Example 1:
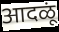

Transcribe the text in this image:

आदळूं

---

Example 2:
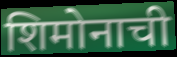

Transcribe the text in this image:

शिमोनाची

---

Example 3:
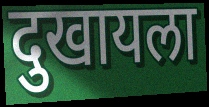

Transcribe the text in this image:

दुखायला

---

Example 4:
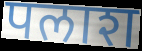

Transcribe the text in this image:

पलाश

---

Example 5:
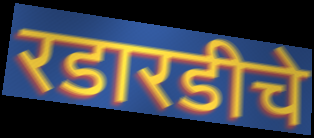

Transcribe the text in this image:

रडारडीचे